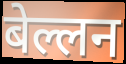
बेल्लन